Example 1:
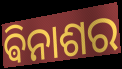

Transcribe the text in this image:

ଵିନାଶର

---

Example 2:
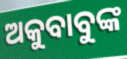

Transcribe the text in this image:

ଅକୁବାବୁଙ୍କ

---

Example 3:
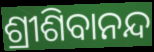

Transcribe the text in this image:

ଶ୍ରୀଶିବାନନ୍ଦ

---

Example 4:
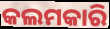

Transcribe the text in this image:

କଲମକାରି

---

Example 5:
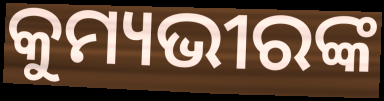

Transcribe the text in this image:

କୁମ୍ୟଭୀରଙ୍କ